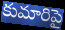
కుమారిపై